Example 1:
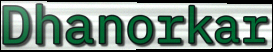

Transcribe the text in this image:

Dhanorkar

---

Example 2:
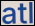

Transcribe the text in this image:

atl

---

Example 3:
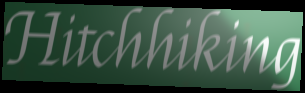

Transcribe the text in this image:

Hitchhiking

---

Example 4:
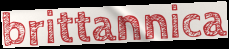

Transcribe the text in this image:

brittannica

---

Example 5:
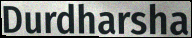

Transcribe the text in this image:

Durdharsha